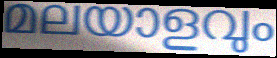
മലയാളവും